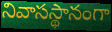
నివాసస్థానంగా